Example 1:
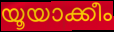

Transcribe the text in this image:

യൂയാക്കീം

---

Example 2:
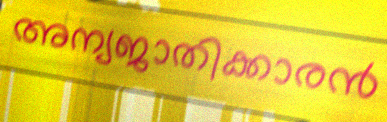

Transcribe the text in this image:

അന്യജാതിക്കാരൻ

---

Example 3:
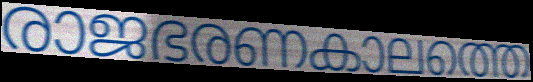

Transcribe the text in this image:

രാജഭരണകാലത്തെ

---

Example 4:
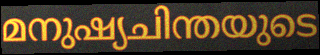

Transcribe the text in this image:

മനുഷ്യചിന്തയുടെ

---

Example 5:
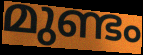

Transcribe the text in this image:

മുണ്ടം